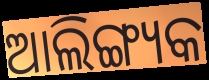
ଆଲିଙ୍ଗ୍ୟକ